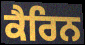
ਕੈਰਿਨ